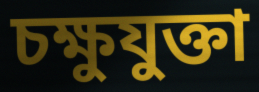
চক্ষুযুক্তা